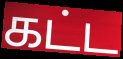
கட்ட